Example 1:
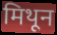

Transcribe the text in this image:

मिथून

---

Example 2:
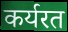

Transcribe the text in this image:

कर्यरत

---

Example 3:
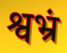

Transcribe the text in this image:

श्वभ्रं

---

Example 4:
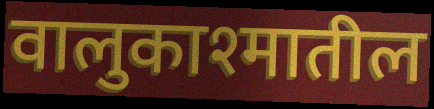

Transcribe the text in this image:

वालुकाश्मातील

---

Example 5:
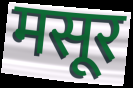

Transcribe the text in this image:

मसूर